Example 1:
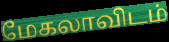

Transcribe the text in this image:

மேகலாவிடம்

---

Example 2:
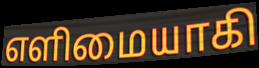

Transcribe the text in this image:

எளிமையாகி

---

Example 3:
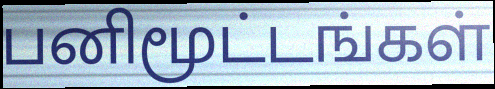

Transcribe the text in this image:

பனிமூட்டங்கள்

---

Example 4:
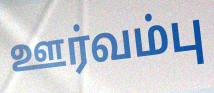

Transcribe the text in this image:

ஊர்வம்பு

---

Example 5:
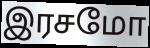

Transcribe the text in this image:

இரசமோ